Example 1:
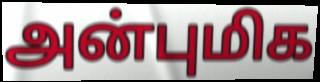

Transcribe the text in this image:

அன்புமிக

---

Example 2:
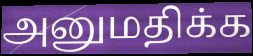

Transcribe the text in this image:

அனுமதிக்க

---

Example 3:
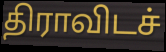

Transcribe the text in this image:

திராவிடச்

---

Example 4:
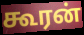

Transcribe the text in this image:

கூரன்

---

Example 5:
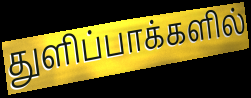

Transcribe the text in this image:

துளிப்பாக்களில்